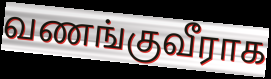
வணங்குவீராக